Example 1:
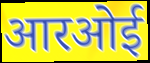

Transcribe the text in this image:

आरओई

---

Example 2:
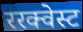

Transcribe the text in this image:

ररक्वेस्ट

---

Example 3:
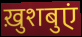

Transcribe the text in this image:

ख़ुशबुएं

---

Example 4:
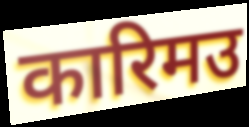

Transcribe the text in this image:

कारिमउ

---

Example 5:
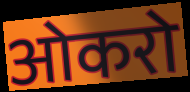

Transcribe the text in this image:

ओकरो